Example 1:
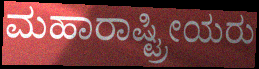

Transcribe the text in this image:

ಮಹಾರಾಷ್ಟ್ರೀಯರು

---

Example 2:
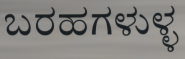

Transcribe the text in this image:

ಬರಹಗಳುಳ್ಳ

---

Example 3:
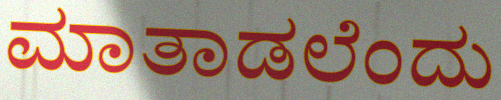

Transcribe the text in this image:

ಮಾತಾಡಲೆಂದು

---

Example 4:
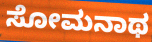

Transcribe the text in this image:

ಸೋಮನಾಥ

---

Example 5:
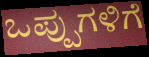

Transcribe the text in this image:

ಒಪ್ಪುಗಳಿಗೆ